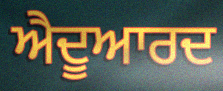
ਐਦੂਆਰਦ